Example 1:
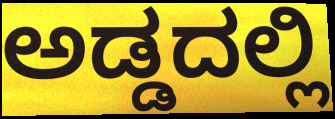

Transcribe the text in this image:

ಅಡ್ಡದಲ್ಲಿ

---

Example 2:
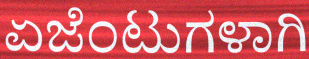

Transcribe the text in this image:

ಏಜೆಂಟುಗಳಾಗಿ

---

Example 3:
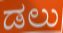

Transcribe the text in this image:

ಡಲು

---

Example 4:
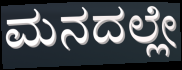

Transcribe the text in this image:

ಮನದಲ್ಲೇ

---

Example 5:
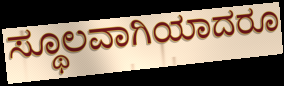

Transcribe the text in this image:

ಸ್ಥೂಲವಾಗಿಯಾದರೂ